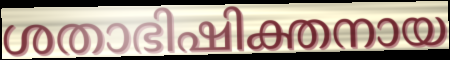
ശതാഭിഷിക്തനായ